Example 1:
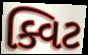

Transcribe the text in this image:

ક્વિટ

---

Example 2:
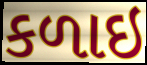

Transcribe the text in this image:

કળાઇ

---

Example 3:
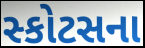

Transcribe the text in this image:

સ્કોટસના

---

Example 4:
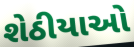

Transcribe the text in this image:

શેઠીયાઓ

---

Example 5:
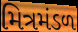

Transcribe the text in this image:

મિત્રમંડળ